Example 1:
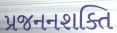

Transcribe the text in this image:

પ્રજનનશક્તિ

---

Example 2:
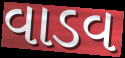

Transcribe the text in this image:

વાડવ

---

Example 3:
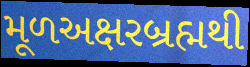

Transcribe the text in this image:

મૂળઅક્ષરબ્રહ્મથી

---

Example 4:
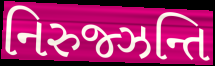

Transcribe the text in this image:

નિરુજ્ઝન્તિ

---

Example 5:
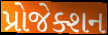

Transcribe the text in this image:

પ્રોજેક્શન